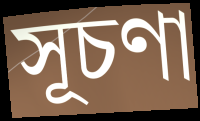
সূচণা